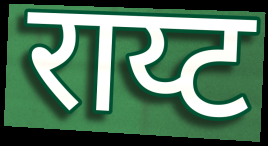
राय्ट